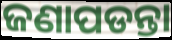
ଜଣାପଡନ୍ତା